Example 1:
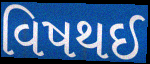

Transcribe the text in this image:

વિષથઈ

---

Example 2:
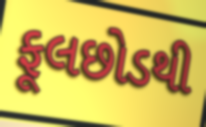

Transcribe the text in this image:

ફૂલછોડથી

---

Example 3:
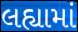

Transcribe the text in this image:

લહ્યામાં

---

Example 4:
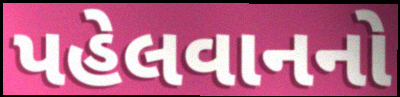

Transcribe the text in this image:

પહેલવાનનો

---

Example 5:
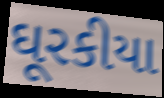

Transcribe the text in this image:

ઘૂરકીયા